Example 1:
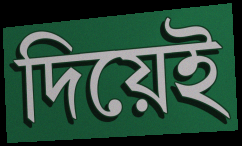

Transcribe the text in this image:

দিয়েই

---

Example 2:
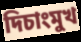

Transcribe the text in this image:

দিচাংমুখ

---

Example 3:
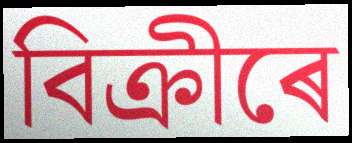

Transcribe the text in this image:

বিক্ৰীৰে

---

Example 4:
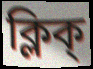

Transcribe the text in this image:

ক্লিক্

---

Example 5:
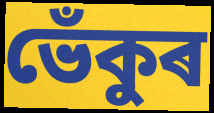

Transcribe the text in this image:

ভেঁকুৰ